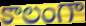
కాలంగా